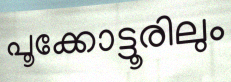
പൂക്കോട്ടൂരിലും